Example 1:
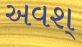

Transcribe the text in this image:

અવશ્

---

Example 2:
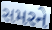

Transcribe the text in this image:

સમરને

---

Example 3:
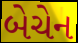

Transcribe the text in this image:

બેચેન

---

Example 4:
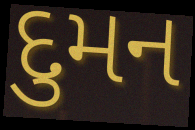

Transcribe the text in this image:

દુમન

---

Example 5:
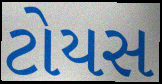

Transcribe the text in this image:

ટોયસ